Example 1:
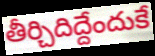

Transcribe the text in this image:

తీర్చిదిద్దేందుకే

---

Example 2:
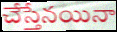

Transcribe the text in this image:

చేస్తేనయినా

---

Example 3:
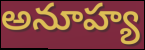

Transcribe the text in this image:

అనూహ్య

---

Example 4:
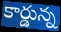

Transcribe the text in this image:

కార్డున్న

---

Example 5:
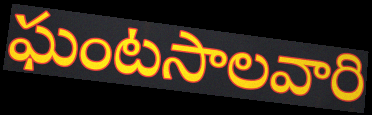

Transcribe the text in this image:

ఘంటసాలవారి